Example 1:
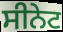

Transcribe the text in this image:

ਸੀਨੇਟ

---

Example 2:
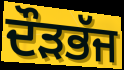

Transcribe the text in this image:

ਦੌੜਭੱਜ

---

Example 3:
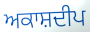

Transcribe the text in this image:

ਅਕਾਸ਼ਦੀਪ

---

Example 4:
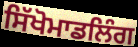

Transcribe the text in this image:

ਸਿੱਖੋਮਾਡਲਿੰਗ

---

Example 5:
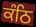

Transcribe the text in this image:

ਕੰਠਿ